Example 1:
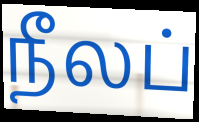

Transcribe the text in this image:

நீலப்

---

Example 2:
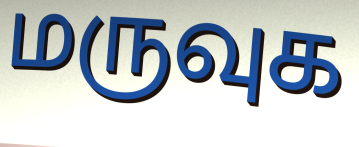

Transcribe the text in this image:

மருவுக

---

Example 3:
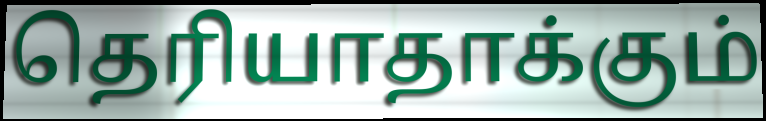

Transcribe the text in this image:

தெரியாதாக்கும்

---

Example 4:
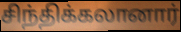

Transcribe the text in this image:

சிந்திக்கலானார்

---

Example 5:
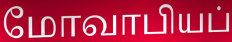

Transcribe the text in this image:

மோவாபியப்